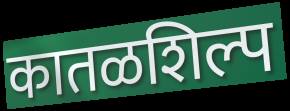
कातळशिल्प